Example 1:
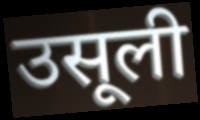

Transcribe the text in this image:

उसूली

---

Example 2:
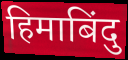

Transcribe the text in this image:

हिमाबिंदु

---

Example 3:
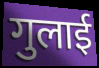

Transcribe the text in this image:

गुलाई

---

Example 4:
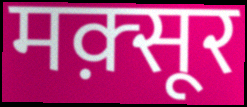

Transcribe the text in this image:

मक़्सूर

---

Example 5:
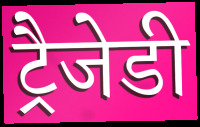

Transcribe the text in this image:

ट्रैजेडी